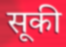
सूकी